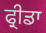
ਫ੍ਰੀਡਾ